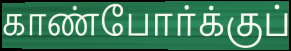
காண்போர்க்குப்